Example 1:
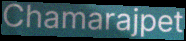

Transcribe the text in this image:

Chamarajpet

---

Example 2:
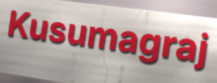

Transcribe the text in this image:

Kusumagraj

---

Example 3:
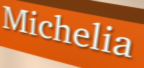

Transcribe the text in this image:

Michelia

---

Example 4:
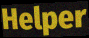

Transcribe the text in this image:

Helper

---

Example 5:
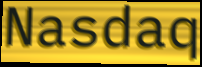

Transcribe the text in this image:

Nasdaq